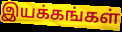
இயக்கங்கள்